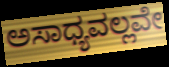
ಅಸಾಧ್ಯವಲ್ಲವೇ